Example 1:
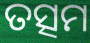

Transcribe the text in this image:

ତତ୍ସମ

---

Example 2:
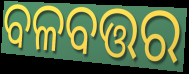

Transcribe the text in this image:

ବଳବତ୍ତର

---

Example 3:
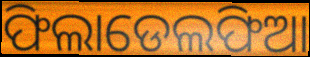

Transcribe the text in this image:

ଫିଲାଡେଲଫିଆ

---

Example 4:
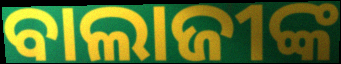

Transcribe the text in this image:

ବାଲାଜୀଙ୍କ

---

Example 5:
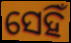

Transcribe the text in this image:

ସେହିଁ